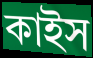
কাইস